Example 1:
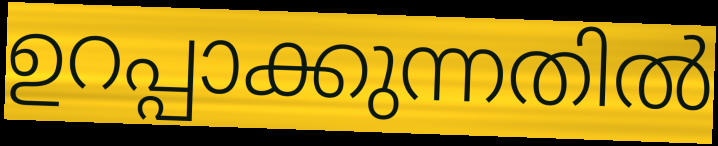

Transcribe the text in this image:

ഉറപ്പാക്കുന്നതിൽ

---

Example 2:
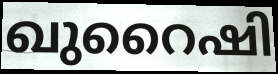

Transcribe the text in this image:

ഖുറൈഷി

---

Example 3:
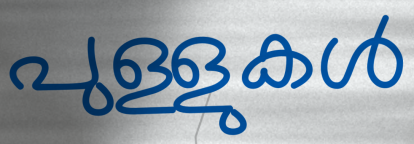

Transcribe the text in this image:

പുള്ളുകൾ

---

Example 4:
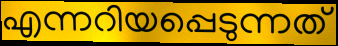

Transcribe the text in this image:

എന്നറിയപ്പെടുന്നത്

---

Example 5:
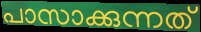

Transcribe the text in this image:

പാസാക്കുന്നത്